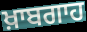
ਖ਼ਾਬਗਾਹ